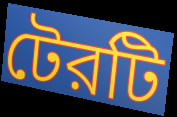
টেরটি